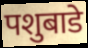
पशुबाडे